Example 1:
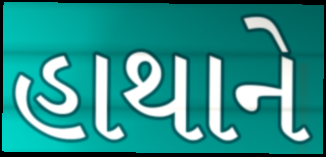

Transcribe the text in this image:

હાથાને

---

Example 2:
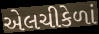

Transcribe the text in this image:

એલચીકેળાં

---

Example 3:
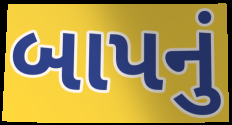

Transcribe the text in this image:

બાપનું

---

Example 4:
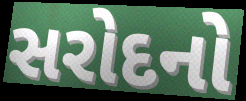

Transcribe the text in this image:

સરોદનો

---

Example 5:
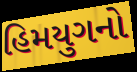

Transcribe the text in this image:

હિમયુગનો